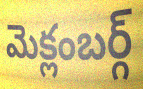
మెక్లంబర్గ్